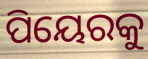
ପିୟେରକୁ